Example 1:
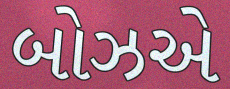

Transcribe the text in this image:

બોઝએ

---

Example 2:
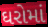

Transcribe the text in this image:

ઘરોમાં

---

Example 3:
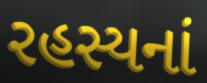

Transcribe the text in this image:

રહસ્યનાં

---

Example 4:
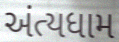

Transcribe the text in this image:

અંત્યધામ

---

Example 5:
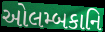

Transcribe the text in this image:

ઓલમ્બકાનિ